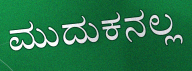
ಮುದುಕನಲ್ಲ